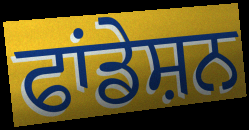
ਫਾਂਡੇਸ਼ਨ